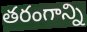
తరంగాన్ని